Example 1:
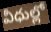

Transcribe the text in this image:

వీధుల్లో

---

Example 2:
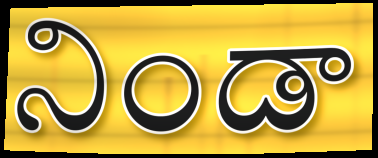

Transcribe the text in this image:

నిండా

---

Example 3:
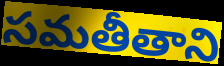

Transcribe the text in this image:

సమతీతాని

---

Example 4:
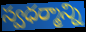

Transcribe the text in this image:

స్వధర్మాన్ని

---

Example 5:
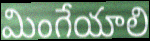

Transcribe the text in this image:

మింగేయాలి